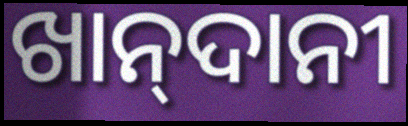
ଖାନ୍‍ଦାନୀ